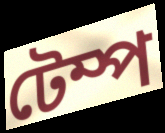
টেম্প